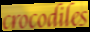
crocodiles